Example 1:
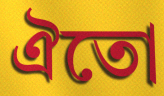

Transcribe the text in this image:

ঐতো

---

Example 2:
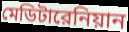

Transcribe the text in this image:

মেডিটারেনিয়ান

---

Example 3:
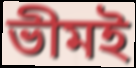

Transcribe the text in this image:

ভীমই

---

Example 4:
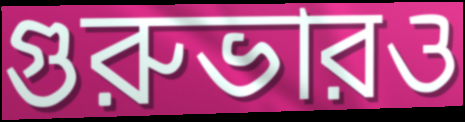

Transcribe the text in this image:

গুরুভারও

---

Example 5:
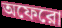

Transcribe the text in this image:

অফেরো